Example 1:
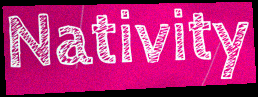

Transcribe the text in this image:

Nativity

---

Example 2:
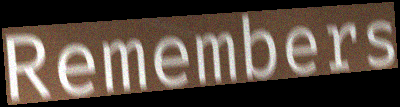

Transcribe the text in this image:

Remembers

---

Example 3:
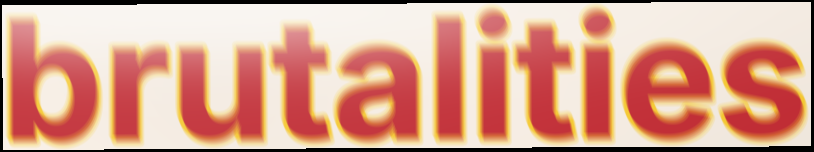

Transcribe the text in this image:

brutalities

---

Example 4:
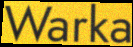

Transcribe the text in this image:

Warka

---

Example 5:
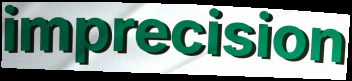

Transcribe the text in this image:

imprecision